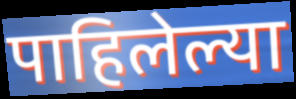
पाहिलेल्या